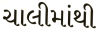
ચાલીમાંથી